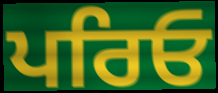
ਪਰਿਓ